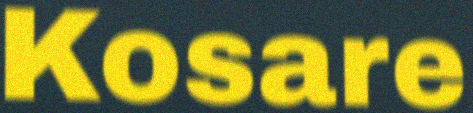
Kosare